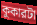
কুকারটা